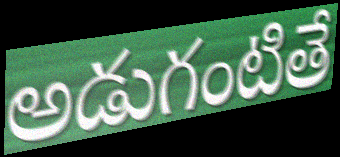
అడుగంటితే